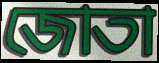
জোতা